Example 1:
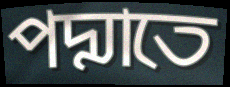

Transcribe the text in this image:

পদ্মাতে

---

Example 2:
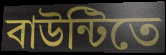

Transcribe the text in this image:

বাউন্টিতে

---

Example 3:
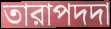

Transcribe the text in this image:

তারাপদদা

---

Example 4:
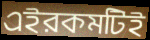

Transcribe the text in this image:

এইরকমটিই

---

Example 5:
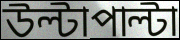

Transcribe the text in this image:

উল্টাপাল্টা